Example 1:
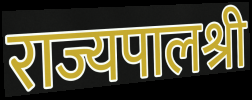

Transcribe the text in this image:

राज्यपालश्री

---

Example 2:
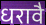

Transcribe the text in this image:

धरावै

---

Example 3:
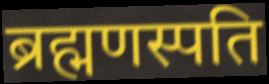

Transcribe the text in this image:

ब्रह्मणस्पति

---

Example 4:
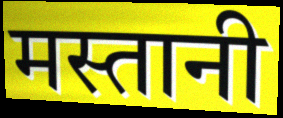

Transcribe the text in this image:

मस्‍तानी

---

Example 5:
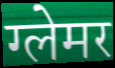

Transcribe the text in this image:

ग्लेमर